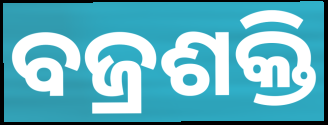
ବଜ୍ରଶକ୍ତି